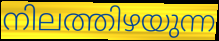
നിലത്തിഴയുന്ന